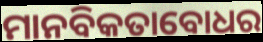
ମାନବିକତାବୋଧର